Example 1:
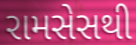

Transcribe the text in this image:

રામસેસથી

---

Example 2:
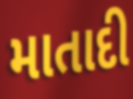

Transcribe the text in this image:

માતાદી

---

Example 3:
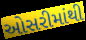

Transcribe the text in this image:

ઓસરીમાંથી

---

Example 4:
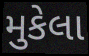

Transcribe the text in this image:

મુકેલા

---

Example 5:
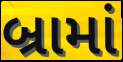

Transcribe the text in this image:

બ્રામાં